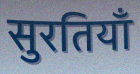
सुरतियाँ